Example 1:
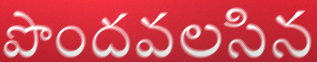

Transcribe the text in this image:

పొందవలసిన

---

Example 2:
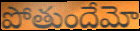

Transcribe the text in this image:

పోతుందేమో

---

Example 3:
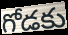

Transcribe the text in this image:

గోడకు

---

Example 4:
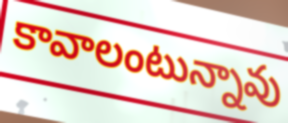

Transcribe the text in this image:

కావాలంటున్నావు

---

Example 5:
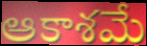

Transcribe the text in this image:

ఆకాశమే